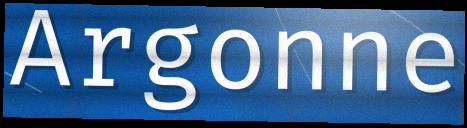
Argonne